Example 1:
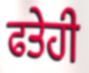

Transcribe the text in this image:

ਫਤੇਹੀ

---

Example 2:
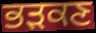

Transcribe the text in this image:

ਭੜਕਣ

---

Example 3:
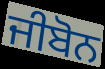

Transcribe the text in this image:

ਜੀਬੋਨ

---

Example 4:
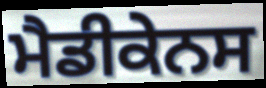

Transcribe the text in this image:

ਮੈਡੀਕੇਨਸ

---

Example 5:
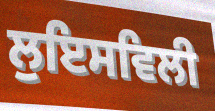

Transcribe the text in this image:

ਲੁਇਸਵਿਲੀ